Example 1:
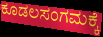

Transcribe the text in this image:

ಕೂಡಲಸಂಗಮಕ್ಕೆ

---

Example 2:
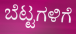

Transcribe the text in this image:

ಬೆಟ್ಟಗಳಿಗೆ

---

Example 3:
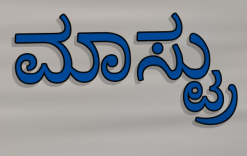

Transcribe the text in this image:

ಮಾಸ್ಟ್ರು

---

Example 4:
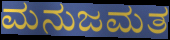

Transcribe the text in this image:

ಮನುಜಮತ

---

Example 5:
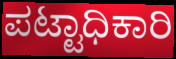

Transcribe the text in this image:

ಪಟ್ಟಾಧಿಕಾರಿ